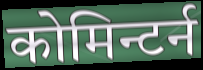
कोमिन्टर्न